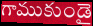
గాముకుండై